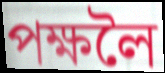
পক্ষলৈ